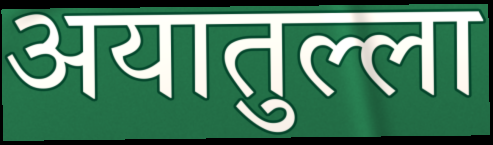
अयातुल्‍ला